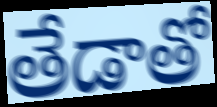
తేడాతో